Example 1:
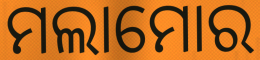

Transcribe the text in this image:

ମଲାମୋର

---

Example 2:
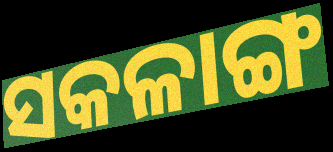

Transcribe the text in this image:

ସକଳାଙ୍ଗ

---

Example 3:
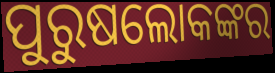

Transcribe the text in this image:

ପୁରୁଷଲୋକଙ୍କର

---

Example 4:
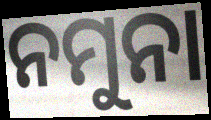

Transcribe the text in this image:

ନମୁନା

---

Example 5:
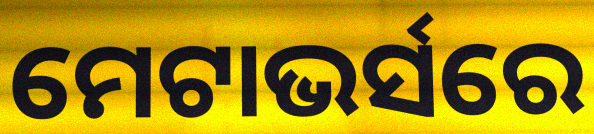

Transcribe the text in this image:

ମେଟାଭର୍ସରେ